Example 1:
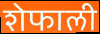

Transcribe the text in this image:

शेफाली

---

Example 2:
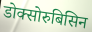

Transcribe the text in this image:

डोक्सोरुबिसिन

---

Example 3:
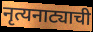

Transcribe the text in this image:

नृत्यनाट्याची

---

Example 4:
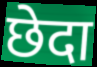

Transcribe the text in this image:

छेदा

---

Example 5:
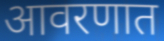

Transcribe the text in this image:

आवरणात